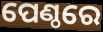
ପେଣ୍ଠରେ